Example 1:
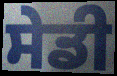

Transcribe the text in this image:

ਸੇਡੀ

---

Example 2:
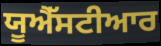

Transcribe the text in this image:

ਯੂਐੱਸਟੀਆਰ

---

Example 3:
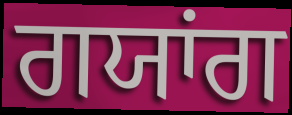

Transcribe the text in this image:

ਗਯਾਂਗ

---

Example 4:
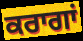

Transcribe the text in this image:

ਕਰਾਗਾਂ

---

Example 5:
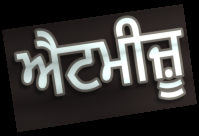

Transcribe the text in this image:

ਐਟਮੀਜ਼ੂ